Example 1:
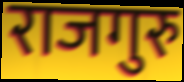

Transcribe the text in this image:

राजगुरु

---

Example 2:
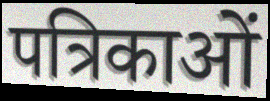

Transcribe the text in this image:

पत्रिकाओं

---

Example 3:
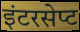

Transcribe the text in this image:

इंटरसेप्‍ट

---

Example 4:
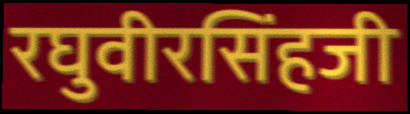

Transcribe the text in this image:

रघुवीरसिंहजी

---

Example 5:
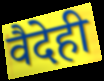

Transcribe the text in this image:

वैदेही